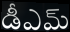
డీఎమ్